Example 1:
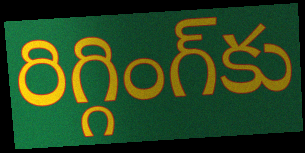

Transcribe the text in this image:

రిగ్గింగ్‌కు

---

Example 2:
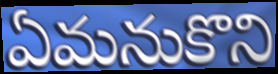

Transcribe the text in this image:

ఏమనుకొని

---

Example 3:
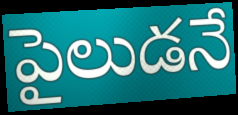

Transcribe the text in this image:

పైలుడనే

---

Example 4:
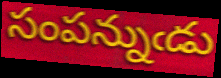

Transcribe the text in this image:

సంపన్నుఁడు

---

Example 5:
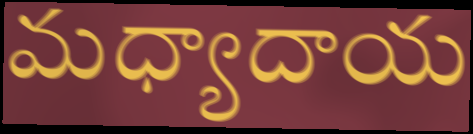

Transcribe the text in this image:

మధ్యాదాయ